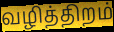
வழித்திறம்